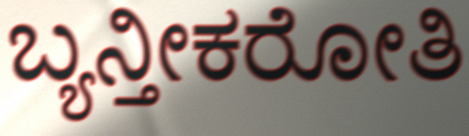
ಬ್ಯನ್ತೀಕರೋತಿ